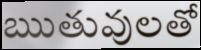
ఋతువులతో